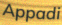
Appadi